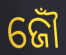
ଜୌଁ